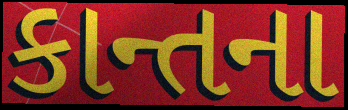
કાન્તના